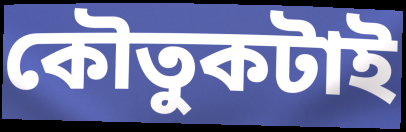
কৌতুকটাই